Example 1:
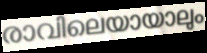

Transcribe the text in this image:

രാവിലെയായാലും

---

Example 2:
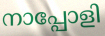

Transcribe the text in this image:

നാപ്പോളി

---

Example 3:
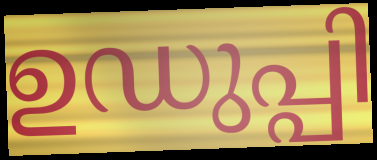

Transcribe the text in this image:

ഉഡുപ്പി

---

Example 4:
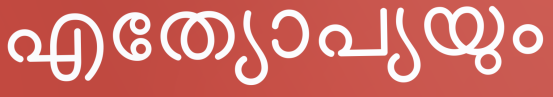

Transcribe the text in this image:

എത്യോപ്യയും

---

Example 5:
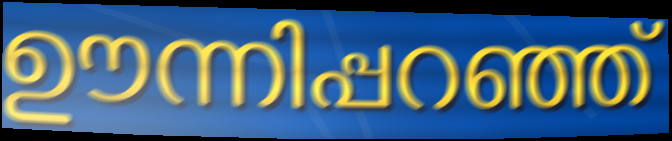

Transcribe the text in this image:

ഊന്നിപ്പറഞ്ഞ്